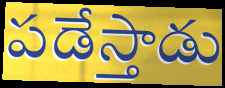
పడేస్తాడు